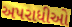
અપરાધીઓ